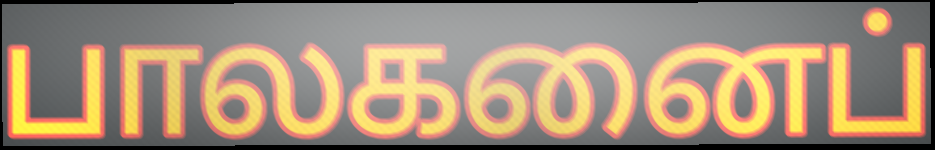
பாலகனைப்